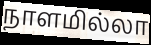
நாளமில்லா